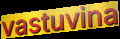
vastuvina